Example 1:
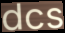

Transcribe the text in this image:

dcs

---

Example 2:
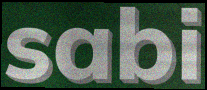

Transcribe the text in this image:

sabi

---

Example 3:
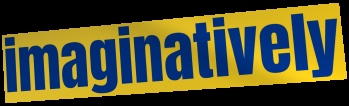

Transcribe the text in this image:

imaginatively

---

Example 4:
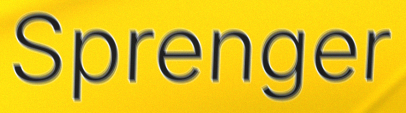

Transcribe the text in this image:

Sprenger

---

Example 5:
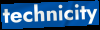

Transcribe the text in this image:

technicity